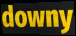
downy